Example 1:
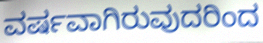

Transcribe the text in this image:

ವರ್ಷವಾಗಿರುವುದರಿಂದ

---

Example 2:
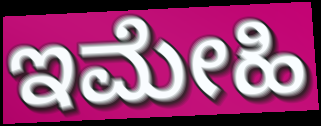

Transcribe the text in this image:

ಇಮೇಹಿ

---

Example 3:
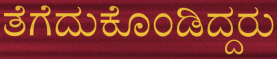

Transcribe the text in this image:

ತೆಗೆದುಕೊಂಡಿದ್ದರು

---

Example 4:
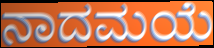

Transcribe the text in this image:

ನಾದಮಯೆ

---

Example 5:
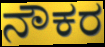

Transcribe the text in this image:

ನೌಕರ